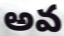
అవ